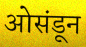
ओसंडून